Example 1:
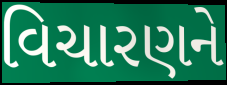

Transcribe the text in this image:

વિચારણને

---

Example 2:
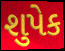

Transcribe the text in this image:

શુપેક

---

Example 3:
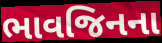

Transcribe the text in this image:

ભાવજિનના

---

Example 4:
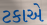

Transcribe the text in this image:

ટકાએ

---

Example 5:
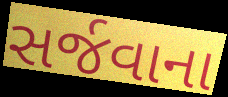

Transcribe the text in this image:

સર્જવાના